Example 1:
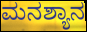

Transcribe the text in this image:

ಮನಶ್ಯಾನ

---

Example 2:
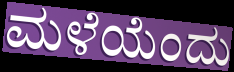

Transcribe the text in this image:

ಮಳೆಯೆಂದು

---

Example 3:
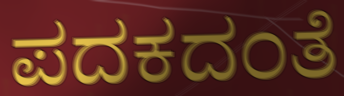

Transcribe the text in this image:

ಪದಕದಂತೆ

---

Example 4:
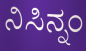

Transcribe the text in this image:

ನಿಸಿನ್ನಂ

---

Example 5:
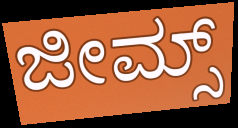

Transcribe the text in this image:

ಜೀಮ್ಸ್